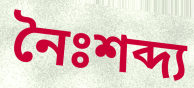
নৈঃশব্দ্য